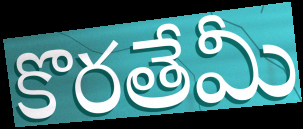
కొరతేమీ